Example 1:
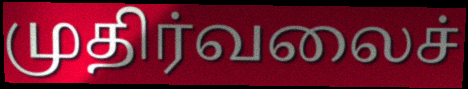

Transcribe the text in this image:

முதிர்வலைச்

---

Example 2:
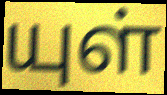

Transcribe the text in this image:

யுள்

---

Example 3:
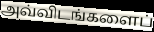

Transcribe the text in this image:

அவ்விடங்களைப்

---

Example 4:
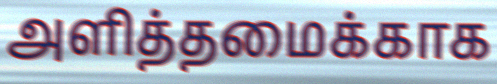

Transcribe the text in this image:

அளித்தமைக்காக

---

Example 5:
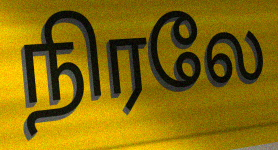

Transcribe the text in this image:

நிரலே